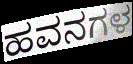
ಹವನಗಳ